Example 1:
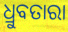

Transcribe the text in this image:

ଧ୍ରୁବତାରା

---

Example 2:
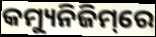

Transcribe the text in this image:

କମ୍ୟୁନିଜିମ୍‌ରେ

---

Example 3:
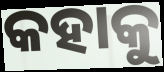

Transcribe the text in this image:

କହାକୁ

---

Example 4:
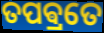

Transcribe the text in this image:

ତପଵ୍ରତେ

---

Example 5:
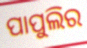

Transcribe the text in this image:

ପାପୁଲିର